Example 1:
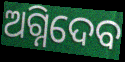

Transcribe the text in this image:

ଅଗ୍ନିଦେବ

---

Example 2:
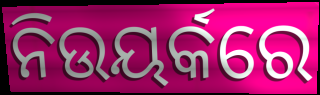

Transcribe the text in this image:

ନିଉୟର୍କରେ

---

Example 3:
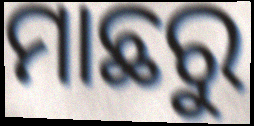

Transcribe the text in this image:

ମାଛରୁ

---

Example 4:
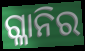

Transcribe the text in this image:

ଗ୍ଳାନିର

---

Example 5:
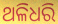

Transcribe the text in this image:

ଥଳିଧରି